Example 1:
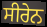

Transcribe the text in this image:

ਸੀਰੇਨ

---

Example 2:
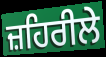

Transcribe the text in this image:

ਜ਼ਹਿਰੀਲੇ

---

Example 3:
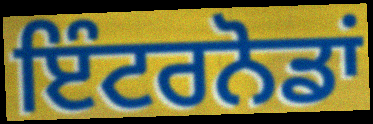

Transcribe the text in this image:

ਇੰਟਰਨੋਡਾਂ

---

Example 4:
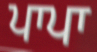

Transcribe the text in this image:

ਪਾਪਾ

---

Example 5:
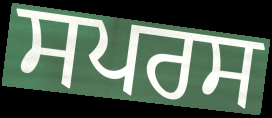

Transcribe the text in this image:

ਸਪਰਸ